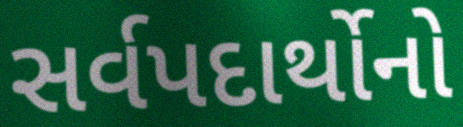
સર્વપદાર્થોનો